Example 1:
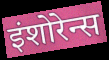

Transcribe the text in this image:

इंशोरेन्स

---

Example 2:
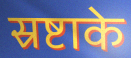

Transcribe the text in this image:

स्रष्टाके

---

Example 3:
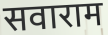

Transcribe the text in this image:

सवाराम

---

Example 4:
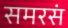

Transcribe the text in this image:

समरसं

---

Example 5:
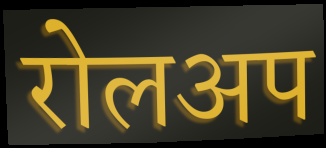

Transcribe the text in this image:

रोलअप